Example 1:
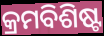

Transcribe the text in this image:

କ୍ରମବିଶିଷ୍ଟ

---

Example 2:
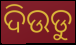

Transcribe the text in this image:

ଦିଉଡୁ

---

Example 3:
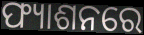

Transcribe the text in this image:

ଫ୍ୟାଶନରେ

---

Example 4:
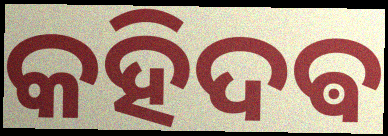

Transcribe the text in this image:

କହିଦଵ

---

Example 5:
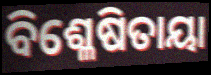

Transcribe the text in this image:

ବିଶ୍ଳେଷିତାୟା